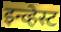
इन्व्हेस्ट